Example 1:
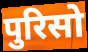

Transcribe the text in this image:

पुरिसो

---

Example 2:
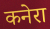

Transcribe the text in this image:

कनेरा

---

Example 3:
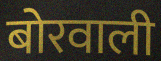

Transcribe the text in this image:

बोरवाली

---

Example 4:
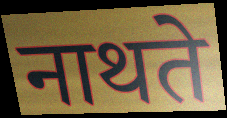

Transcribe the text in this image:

नाथते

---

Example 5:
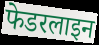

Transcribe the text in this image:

फेडरलाइन